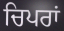
ਚਿਪਰਾਂ